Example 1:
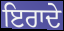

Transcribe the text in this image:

ਇਰਾਦੇ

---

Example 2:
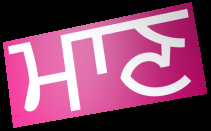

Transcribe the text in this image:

ਮਾਣ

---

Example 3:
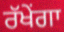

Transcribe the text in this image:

ਰੱਖੇਂਗਾ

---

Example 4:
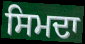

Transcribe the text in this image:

ਸਿਮਦਾ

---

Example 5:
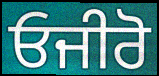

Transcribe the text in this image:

ਓਜੀਰੋ